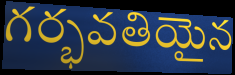
గర్భవతియైన